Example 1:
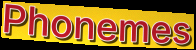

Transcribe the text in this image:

Phonemes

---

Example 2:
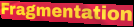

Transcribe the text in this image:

Fragmentation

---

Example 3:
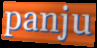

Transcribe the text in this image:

panju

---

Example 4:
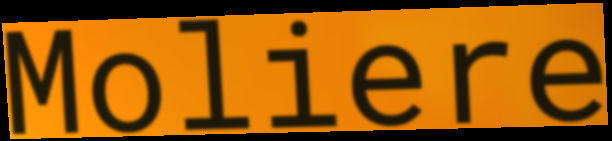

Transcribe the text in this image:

Moliere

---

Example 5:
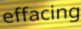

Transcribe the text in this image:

effacing